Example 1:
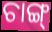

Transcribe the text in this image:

ଚାଙ୍ଗ୍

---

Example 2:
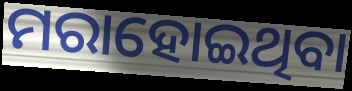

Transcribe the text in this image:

ମରାହୋଇଥିବା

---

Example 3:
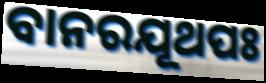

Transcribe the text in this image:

ବାନରଯୂଥପଃ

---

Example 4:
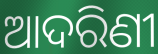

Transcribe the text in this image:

ଆଦରିଣୀ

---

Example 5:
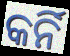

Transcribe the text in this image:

କର୍ନି